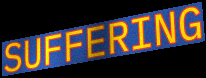
SUFFERING